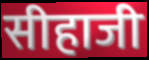
सीहाजी